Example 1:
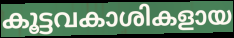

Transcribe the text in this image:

കൂട്ടവകാശികളായ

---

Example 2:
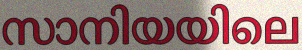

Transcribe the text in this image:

സാനിയയിലെ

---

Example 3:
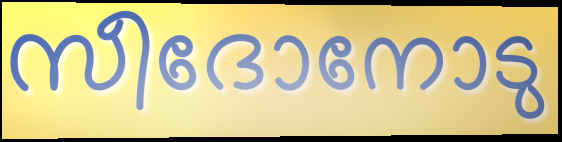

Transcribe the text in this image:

സീദോനോടു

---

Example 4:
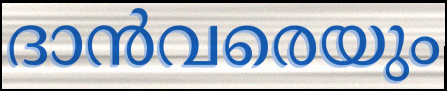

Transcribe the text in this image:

ദാൻവരെയും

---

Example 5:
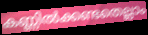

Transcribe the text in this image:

കണ്ണിൽക്കണ്ടതെല്ലാം